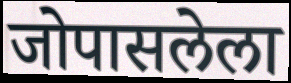
जोपासलेला